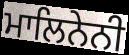
ਮਾਲਿਨੇਨੀ